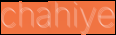
chahiye